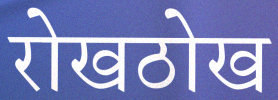
रोखठोख